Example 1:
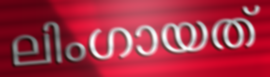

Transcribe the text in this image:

ലിംഗായത്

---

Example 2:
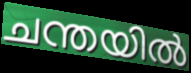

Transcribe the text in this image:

ചന്തയിൽ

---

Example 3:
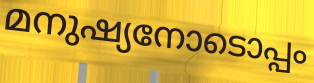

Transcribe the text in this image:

മനുഷ്യനോടൊപ്പം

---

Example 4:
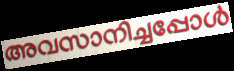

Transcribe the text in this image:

അവസാനിച്ചപ്പോൾ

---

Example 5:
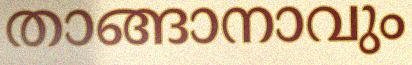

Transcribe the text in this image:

താങ്ങാനാവും